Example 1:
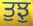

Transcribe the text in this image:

ਤੁਝੁ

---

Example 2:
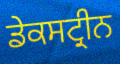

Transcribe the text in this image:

ਡੇਕਸਟ੍ਰੀਨ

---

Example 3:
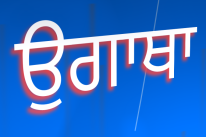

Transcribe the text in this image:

ਉਗਾਥਾ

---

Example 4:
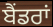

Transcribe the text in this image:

ਬੈਂਡਰਾਂ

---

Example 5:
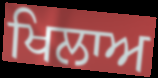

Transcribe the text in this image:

ਖਿਲਾਅ